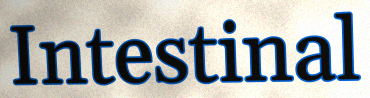
Intestinal